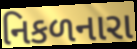
નિકળનારા